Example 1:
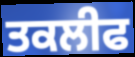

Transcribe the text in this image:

ਤਕਲੀਫ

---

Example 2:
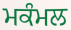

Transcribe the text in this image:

ਮਕੰਮਲ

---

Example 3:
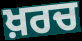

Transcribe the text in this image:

ਖ਼ਰਚ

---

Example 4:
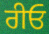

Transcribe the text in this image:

ਰੀਓ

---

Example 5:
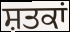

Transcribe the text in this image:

ਸ਼ਤਕਾਂ